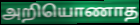
அறியொணாத